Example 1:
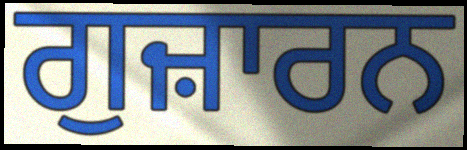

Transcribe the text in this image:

ਗੁਜ਼ਾਰਨ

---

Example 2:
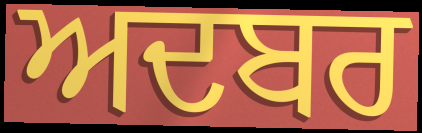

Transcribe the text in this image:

ਅਦਬਰ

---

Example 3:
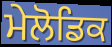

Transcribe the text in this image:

ਮੇਲੋਡਿਕ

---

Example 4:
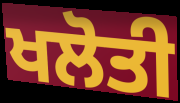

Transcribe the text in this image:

ਖਲੋਤੀ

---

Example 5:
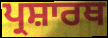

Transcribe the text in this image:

ਪ੍ਰਸ਼ਾਰਥ